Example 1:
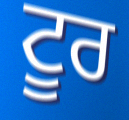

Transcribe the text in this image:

ਟੂਰ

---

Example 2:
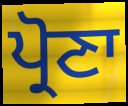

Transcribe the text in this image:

ਪ੍ਰੋਣਾ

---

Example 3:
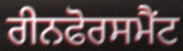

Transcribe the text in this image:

ਰੀਨਫੋਰਸਮੈਂਟ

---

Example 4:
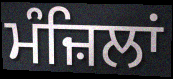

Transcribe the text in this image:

ਮੰਜ਼ਿਲਾਂ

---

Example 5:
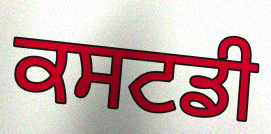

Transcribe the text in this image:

ਕਸਟਡੀ